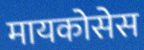
मायकोसेस